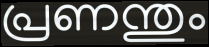
പ്രണന്തും